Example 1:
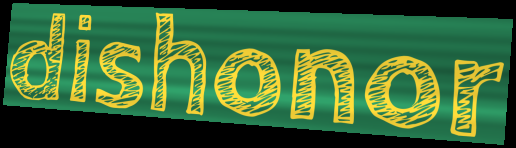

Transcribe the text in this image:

dishonor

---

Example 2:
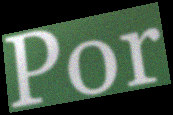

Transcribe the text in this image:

Por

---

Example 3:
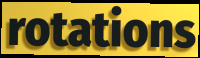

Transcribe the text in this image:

rotations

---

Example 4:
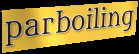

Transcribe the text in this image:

parboiling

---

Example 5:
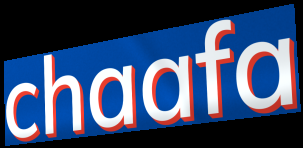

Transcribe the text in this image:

chaafa